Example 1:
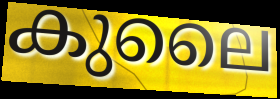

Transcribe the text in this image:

കുലൈ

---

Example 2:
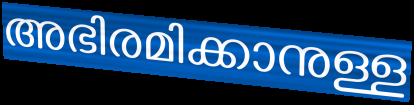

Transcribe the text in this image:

അഭിരമിക്കാനുള്ള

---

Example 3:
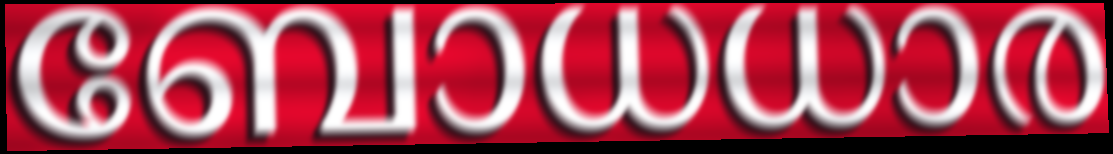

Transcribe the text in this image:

ബോധധാര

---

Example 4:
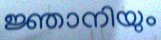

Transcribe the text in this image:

ജ്ഞാനിയും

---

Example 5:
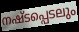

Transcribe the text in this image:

നഷ്ടപ്പെടലും